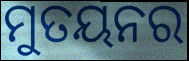
ମୁତୟନର